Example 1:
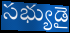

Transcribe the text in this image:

సభ్యుడై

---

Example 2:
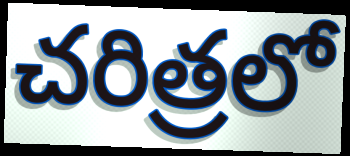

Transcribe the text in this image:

చరిత్రలో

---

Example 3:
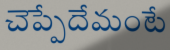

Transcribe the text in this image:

చెప్పేదేమంటే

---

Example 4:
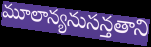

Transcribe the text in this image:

మూలాన్యనుసన్తతాని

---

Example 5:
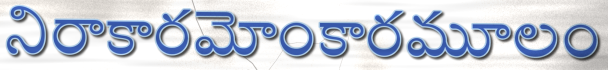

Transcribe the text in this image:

నిరాకారమోంకారమూలం